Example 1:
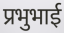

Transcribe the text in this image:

प्रभुभाई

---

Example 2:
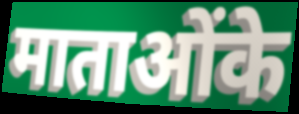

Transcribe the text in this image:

माताओंके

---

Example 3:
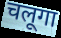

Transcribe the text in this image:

चलूगा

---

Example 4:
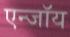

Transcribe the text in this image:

एन्जॉय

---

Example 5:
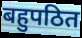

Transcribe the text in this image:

बहुपठित